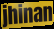
jhinan